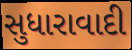
સુધારાવાદી